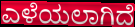
ಎಳೆಯಲಾಗಿದೆ